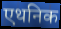
एथनिक